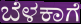
ಬೆಳಕಾಗೆ